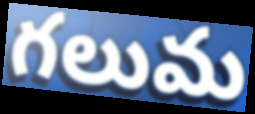
గలుమ